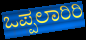
ಒಪ್ಪಲಾರಿರಿ